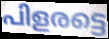
പിളരട്ടെ